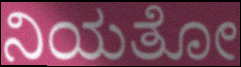
ನಿಯತೋ